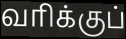
வரிக்குப்